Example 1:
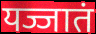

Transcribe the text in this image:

यज्जातं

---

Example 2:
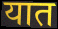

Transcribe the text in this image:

यात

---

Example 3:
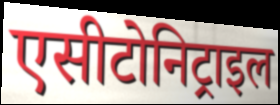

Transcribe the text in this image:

एसीटोनिट्राइल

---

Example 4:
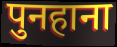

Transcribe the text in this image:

पुनहाना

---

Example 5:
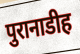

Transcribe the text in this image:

पुरानाडीह